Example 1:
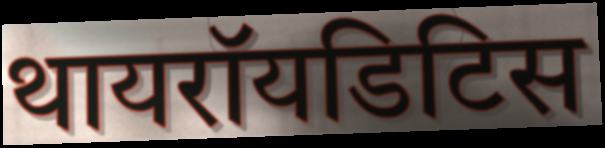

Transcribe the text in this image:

थायरॉयडिटिस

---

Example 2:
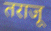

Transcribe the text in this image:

तराजू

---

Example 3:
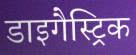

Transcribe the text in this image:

डाइगैस्ट्रिक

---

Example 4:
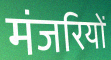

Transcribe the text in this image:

मंजरियों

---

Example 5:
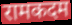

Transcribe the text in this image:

रामकदम